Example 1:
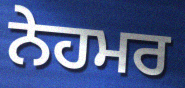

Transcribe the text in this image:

ਨੇਹਮਰ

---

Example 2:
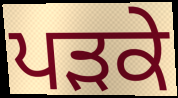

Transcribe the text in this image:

ਪੜਕੇ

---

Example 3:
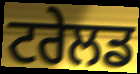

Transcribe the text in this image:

ਟਰੇਲਡ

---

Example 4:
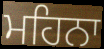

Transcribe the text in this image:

ਮਹਿਨਾ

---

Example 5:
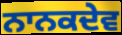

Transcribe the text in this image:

ਨਾਨਕਦੇਵ